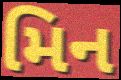
મિન